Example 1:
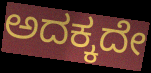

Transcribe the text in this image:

ಅದಕ್ಕದೇ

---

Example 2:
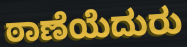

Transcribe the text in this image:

ಠಾಣೆಯೆದುರು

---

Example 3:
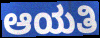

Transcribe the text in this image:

ಆಯತಿ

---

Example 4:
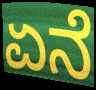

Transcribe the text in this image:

ಏನೆ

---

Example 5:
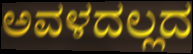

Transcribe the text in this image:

ಅವಳದಲ್ಲದ